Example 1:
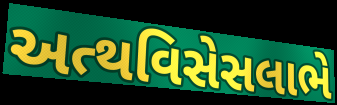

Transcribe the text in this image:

અત્થવિસેસલાભે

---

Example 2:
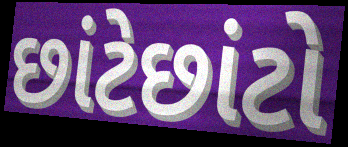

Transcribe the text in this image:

છાંટેછાંટો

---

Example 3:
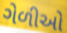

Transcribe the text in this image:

ગેળીઓ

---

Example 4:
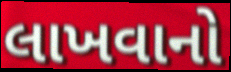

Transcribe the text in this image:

લાખવાનો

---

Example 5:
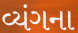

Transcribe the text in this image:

વ્યંગના